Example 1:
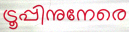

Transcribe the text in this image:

ട്രൂപ്പിനുനേരെ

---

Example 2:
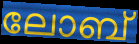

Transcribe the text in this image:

ലോബ്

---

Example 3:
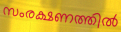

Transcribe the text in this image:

സംരക്ഷണത്തിൽ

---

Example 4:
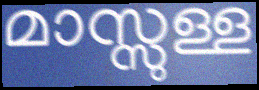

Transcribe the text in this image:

മാസ്സുള്ള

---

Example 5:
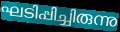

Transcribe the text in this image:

ഘടിപ്പിച്ചിരുന്നു